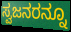
ಸ್ವಜನರನ್ನೂ